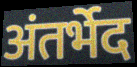
अंतर्भेद